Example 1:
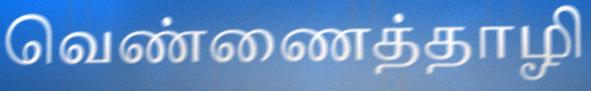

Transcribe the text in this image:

வெண்ணைத்தாழி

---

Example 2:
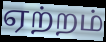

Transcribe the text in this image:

ஏற்றம்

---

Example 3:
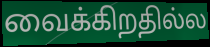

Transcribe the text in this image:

வைக்கிறதில்ல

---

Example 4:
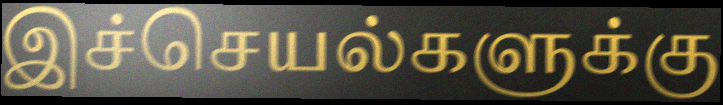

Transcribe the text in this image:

இச்செயல்களுக்கு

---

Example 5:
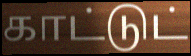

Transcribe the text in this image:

காட்டுட்